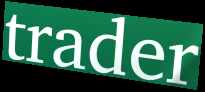
trader